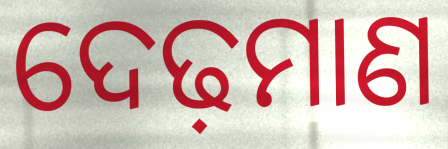
ଦେଢ଼ମାଣ